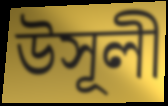
উসূলী